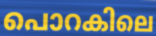
പൊറകിലെ